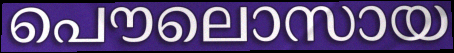
പൌലൊസായ